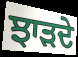
ਝਾੜਦੇ